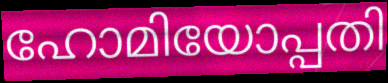
ഹോമിയോപ്പതി